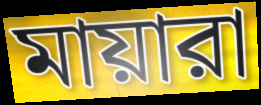
মায়ারা